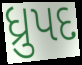
ધ્રુપદ